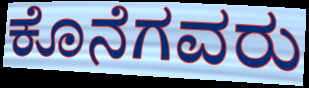
ಕೊನೆಗವರು